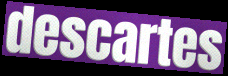
descartes